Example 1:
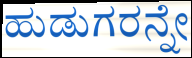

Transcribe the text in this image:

ಹುಡುಗರನ್ನೇ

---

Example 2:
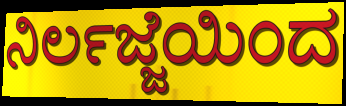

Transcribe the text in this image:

ನಿರ್ಲಜ್ಜೆಯಿಂದ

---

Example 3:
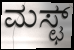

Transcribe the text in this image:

ಮಸ್ಟ್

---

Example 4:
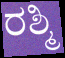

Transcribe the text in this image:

ರಶ್ಮಿ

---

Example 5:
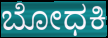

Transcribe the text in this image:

ಬೋಧಕಿ